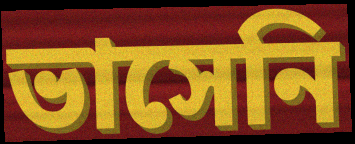
ভাসেনি